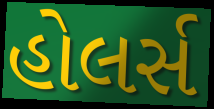
હોલર્સ